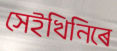
সেইখিনিৰে